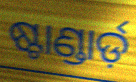
ଷ୍ଟାଣ୍ଡାର୍ଡ଼